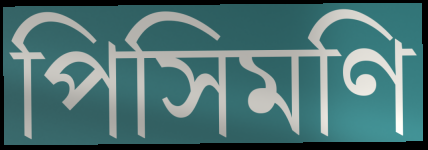
পিসিমণি